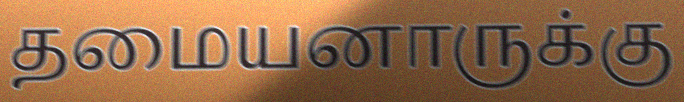
தமையனாருக்கு